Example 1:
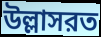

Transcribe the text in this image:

উল্লাসরত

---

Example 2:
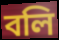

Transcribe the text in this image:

বলি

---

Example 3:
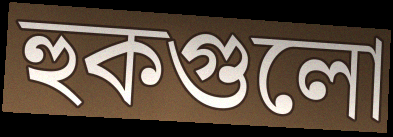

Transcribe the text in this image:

হুকগুলো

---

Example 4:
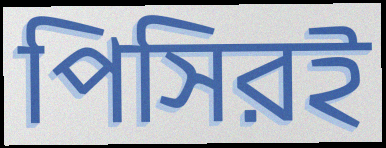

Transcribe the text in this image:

পিসিরই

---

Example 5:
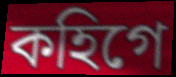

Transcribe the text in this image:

কহিগে